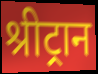
श्रीट्रान